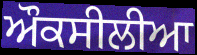
ਔਕਸੀਲੀਆ